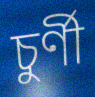
চুর্ণী